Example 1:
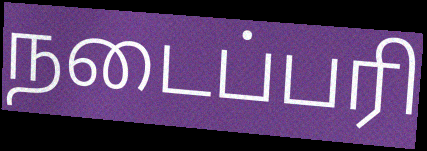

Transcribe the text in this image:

நடைப்பரி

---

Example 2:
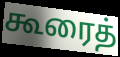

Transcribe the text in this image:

கூரைத்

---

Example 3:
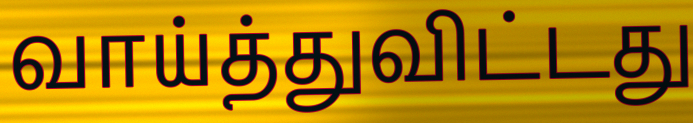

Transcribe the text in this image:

வாய்த்துவிட்டது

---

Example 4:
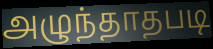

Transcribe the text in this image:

அழுந்தாதபடி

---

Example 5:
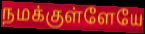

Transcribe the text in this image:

நமக்குள்ளேயே